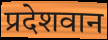
प्रदेशवान